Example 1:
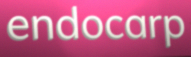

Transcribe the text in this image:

endocarp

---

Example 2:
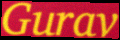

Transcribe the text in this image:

Gurav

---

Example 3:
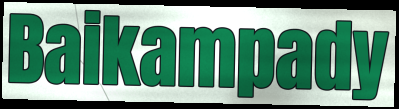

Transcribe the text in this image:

Baikampady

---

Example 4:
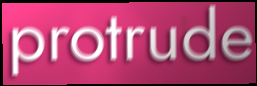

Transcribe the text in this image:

protrude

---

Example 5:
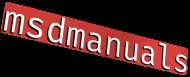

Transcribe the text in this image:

msdmanuals